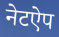
नेटऐप